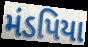
મંડપિયા